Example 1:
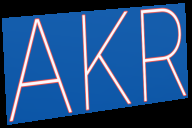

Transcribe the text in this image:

AKR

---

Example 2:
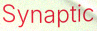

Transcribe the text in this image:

Synaptic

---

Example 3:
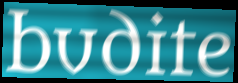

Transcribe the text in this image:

budite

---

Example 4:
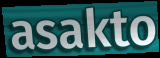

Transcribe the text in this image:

asakto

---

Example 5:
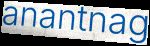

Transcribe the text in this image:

anantnag